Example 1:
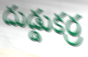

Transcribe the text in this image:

దుడ్డుకర్ర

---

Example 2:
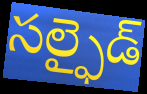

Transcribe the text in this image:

సల్ఫైడ్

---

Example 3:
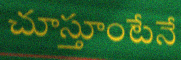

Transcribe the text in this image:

చూస్తూంటేనే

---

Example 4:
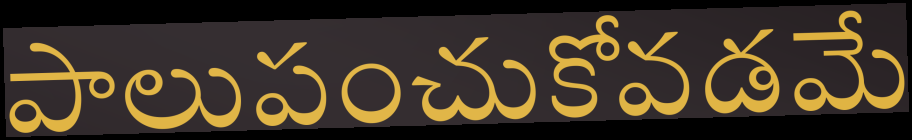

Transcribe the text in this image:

పాలుపంచుకోవడమే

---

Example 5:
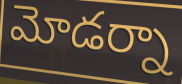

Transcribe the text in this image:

మోడర్నా